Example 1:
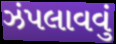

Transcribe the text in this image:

ઝંપલાવવું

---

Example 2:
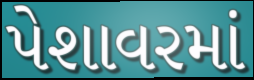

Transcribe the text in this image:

પેશાવરમાં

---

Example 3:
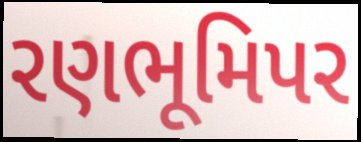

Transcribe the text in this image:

રણભૂમિપર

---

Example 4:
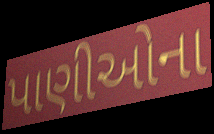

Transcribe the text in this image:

પાણીઓના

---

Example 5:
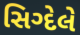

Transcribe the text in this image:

સિગ્દેલે